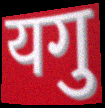
यगु